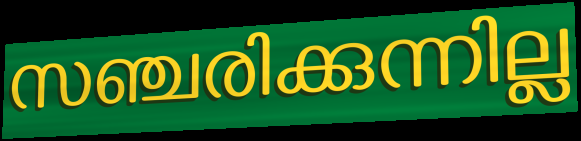
സഞ്ചരിക്കുന്നില്ല